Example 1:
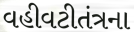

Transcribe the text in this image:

વહીવટીતંત્રના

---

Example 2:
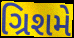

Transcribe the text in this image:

ગ્રિશમે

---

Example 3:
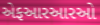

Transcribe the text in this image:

એફઆરઆરઓ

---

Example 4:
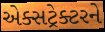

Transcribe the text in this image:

એક્સટ્રેક્ટરને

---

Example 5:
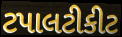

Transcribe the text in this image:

ટપાલટીકીટ